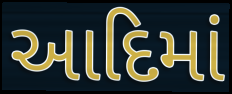
આદિમાં